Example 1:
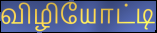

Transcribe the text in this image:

விழியோட்டி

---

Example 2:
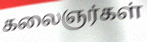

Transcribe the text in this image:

கலைஞர்கள்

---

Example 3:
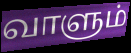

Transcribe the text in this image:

வாளும்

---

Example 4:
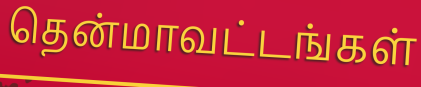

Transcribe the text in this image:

தென்மாவட்டங்கள்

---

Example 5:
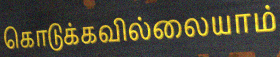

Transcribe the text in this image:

கொடுக்கவில்லையாம்